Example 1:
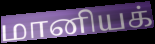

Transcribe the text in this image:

மானியக்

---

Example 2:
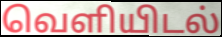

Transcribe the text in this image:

வெளியிடல்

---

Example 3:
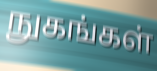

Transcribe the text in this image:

நுகங்கள்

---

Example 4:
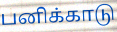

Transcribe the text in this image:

பனிக்காடு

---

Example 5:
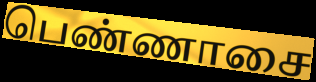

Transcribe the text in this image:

பெண்ணாசை